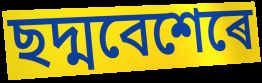
ছদ্মবেশেৰে